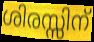
ശിരസ്സിന്